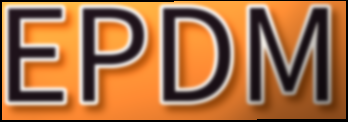
EPDM